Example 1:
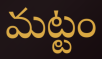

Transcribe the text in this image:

మట్టం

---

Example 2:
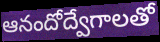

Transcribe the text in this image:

ఆనందోద్వేగాలతో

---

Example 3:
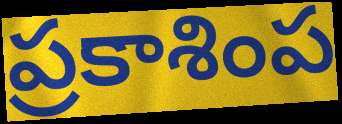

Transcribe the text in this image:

ప్రకాశింప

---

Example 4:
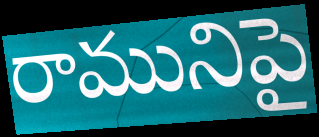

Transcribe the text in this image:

రామునిపై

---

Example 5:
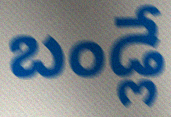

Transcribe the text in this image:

బండ్లే